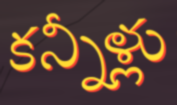
కన్నీళ్లు